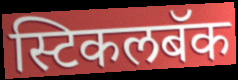
स्टिकलबॅक